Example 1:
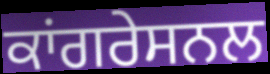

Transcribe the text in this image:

ਕਾਂਗਰੇਸਨਲ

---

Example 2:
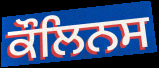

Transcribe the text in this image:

ਕੌਲਿਨਸ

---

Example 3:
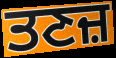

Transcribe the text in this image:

ਤਣਜ਼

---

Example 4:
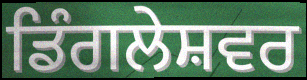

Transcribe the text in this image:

ਡਿੰਗਲੇਸ਼ਵਰ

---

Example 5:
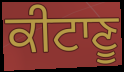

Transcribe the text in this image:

ਕੀਟਾਣੂ